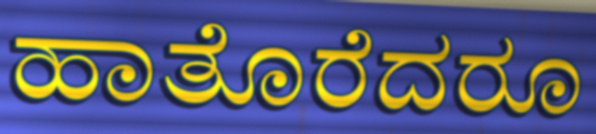
ಹಾತೊರೆದರೂ